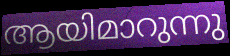
ആയിമാറുന്നു